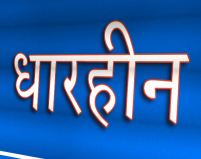
धारहीन